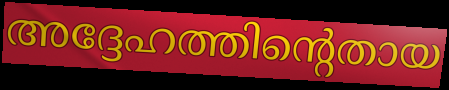
അദ്ദേഹത്തിന്റെതായ